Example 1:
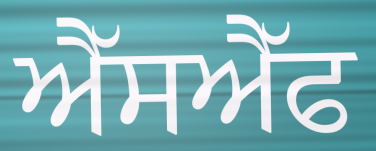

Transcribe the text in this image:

ਐੱਸਐੱਫ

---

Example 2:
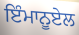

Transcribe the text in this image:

ਇੰਮਾਨੂਏਲ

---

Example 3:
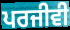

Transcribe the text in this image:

ਪਰਜੀਵੀ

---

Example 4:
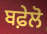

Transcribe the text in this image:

ਬਫ਼ੇਲੋ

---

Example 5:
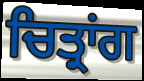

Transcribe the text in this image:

ਚਿਤ੍ਰਾਂਗ